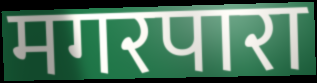
मगरपारा